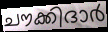
ചൗക്കിദാർ